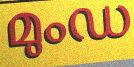
മുംഡ